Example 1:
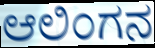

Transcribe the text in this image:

ಆಲಿಂಗನ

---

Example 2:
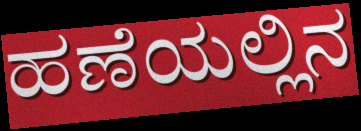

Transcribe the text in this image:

ಹಣೆಯಲ್ಲಿನ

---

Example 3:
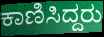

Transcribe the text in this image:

ಕಾಣಿಸಿದ್ದರು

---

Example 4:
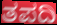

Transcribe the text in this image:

ತಪದಿ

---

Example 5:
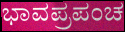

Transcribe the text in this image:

ಭಾವಪ್ರಪಂಚ